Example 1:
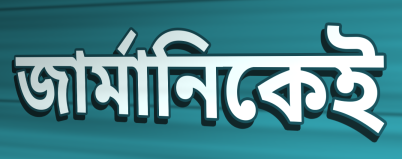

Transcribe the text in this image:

জার্মানিকেই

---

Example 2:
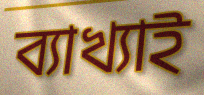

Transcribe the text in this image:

ব্যাখ্যাই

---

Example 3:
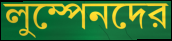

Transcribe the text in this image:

লুম্পেনদের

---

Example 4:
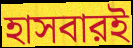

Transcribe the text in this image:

হাসবারই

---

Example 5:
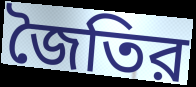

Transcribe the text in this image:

জৈতির